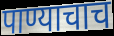
पाण्याचाच